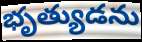
భృత్యుడను